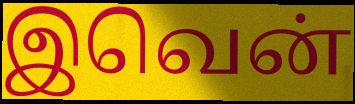
இவென்